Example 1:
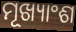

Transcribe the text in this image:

ମୂଖ୍ୟାଂଶ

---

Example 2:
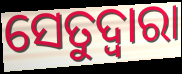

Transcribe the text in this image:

ସେତୁଦ୍ୱାରା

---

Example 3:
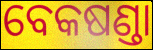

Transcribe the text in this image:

ବେକଷଣ୍ଡା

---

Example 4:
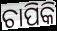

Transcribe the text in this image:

ଚାପିକି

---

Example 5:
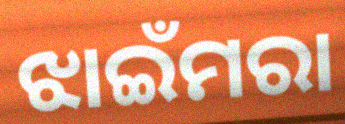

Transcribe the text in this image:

ଝାଇଁମରା